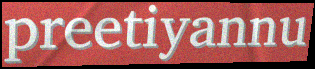
preetiyannu